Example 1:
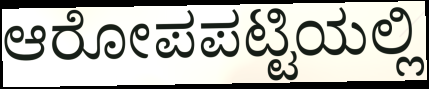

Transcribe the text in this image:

ಆರೋಪಪಟ್ಟಿಯಲ್ಲಿ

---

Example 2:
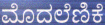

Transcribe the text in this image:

ಮೊದಲೆಣಿಕೆ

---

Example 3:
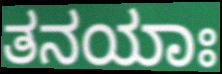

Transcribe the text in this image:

ತನಯಾಃ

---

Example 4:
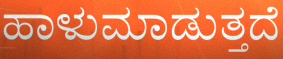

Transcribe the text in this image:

ಹಾಳುಮಾಡುತ್ತದೆ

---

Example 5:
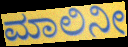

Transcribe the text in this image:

ಮಾಲಿನೀ